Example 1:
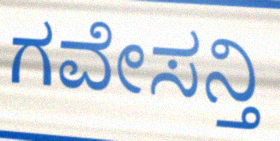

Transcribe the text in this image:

ಗವೇಸನ್ತಿ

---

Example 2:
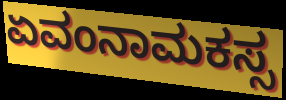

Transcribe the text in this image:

ಏವಂನಾಮಕಸ್ಸ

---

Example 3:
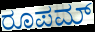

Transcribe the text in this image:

ರೂಪಮ್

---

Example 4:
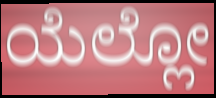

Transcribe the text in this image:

ಯೆಲ್ಲೋ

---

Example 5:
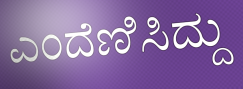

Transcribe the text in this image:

ಎಂದೆಣಿಸಿದ್ದು